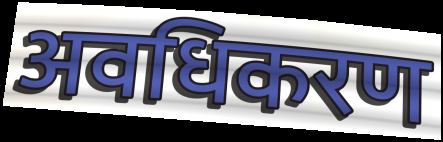
अवधिकरण